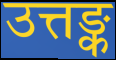
उत्तङ्क